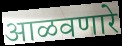
आळवणारे